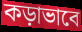
কড়াভাবে